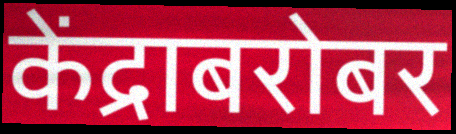
केंद्राबरोबर